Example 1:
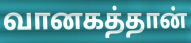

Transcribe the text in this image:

வானகத்தான்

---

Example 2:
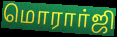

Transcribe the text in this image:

மொரார்ஜி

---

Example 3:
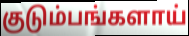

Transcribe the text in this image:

குடும்பங்களாய்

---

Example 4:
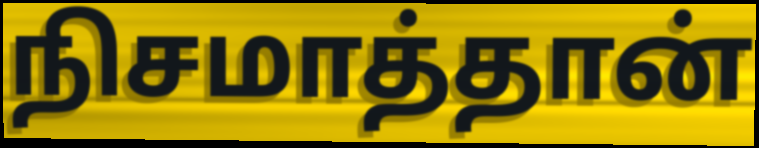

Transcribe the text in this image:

நிசமாத்தான்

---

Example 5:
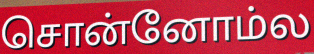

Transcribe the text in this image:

சொன்னோம்ல